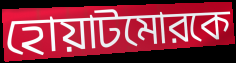
হোয়াটমোরকে